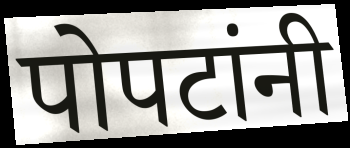
पोपटांनी